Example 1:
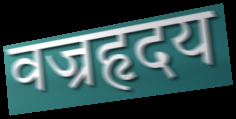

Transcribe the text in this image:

वज्रहृदय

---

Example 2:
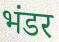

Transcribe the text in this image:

भंडर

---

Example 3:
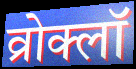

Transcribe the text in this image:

व्रोक्लॉ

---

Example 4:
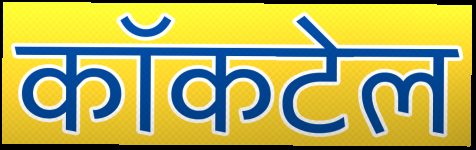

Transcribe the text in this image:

कॉकटेल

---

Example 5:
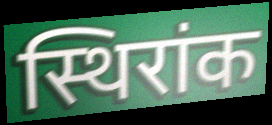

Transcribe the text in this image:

स्थिरांक